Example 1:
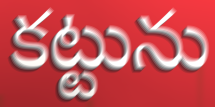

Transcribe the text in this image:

కట్టును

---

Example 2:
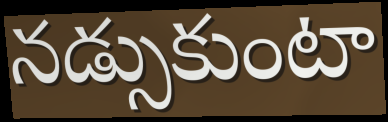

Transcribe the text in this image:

నడ్సుకుంటా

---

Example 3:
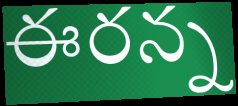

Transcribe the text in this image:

ఈరన్న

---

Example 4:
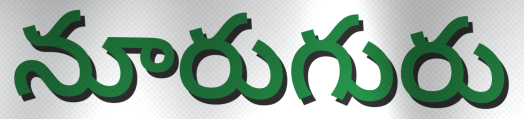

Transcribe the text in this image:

నూరుగురు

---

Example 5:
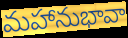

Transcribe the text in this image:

మహానుభావా